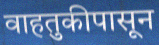
वाहतुकीपासून